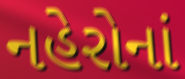
નહેરોનાં